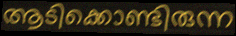
ആടിക്കൊണ്ടിരുന്ന